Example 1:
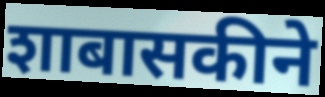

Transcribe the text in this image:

शाबासकीने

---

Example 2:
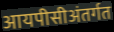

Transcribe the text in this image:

आयपीसीअंतर्गत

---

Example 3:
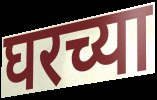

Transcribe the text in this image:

घरच्या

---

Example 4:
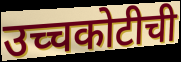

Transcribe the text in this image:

उच्चकोटीची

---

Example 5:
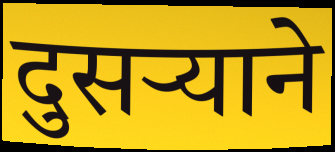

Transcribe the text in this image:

दुसर्‍याने